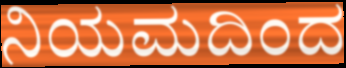
ನಿಯಮದಿಂದ